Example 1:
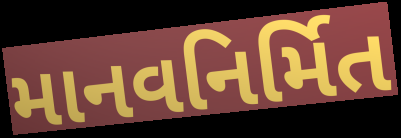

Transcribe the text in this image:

માનવનિર્મિત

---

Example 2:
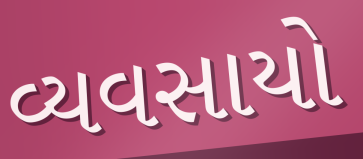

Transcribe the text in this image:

વ્યવસાયો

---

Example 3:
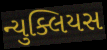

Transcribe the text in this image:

ન્યુક્લિયસ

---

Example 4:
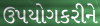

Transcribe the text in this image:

ઉપયોગકરીને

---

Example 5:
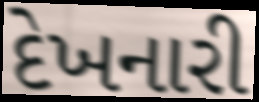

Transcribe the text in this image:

દેખનારી